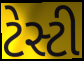
ટેસ્ટી